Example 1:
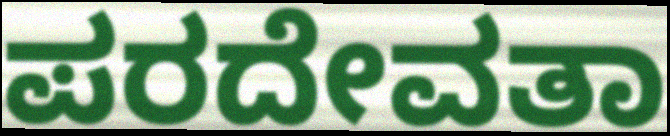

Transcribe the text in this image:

ಪರದೇವತಾ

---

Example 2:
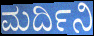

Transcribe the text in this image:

ಮರ್ದಿನಿ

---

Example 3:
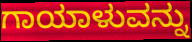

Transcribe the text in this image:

ಗಾಯಾಳುವನ್ನು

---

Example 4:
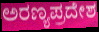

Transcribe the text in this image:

ಅರಣ್ಯಪ್ರದೇಶ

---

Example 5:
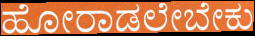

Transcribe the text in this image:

ಹೋರಾಡಲೇಬೇಕು